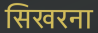
सिखरना